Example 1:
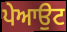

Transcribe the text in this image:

ਪੇਆਉਟ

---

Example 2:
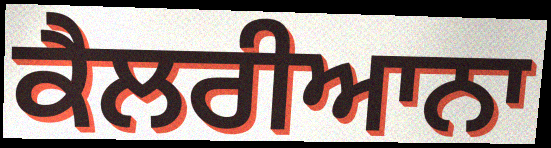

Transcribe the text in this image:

ਕੈਲਰੀਆਨਾ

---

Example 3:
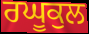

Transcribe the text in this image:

ਰਘੂਕੁਲ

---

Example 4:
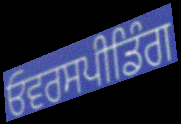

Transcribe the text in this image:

ਓਵਰਸਪੀਡਿੰਗ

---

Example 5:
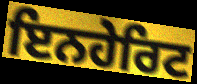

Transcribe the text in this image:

ਇਨਹੇਰਿਟ